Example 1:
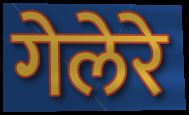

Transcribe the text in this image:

गेलेरे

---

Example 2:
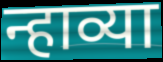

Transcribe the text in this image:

न्हाव्या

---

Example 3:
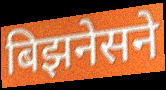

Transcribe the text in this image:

बिझनेसने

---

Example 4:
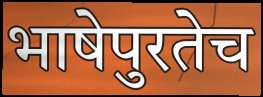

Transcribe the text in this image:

भाषेपुरतेच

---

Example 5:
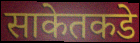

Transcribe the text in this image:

साकेतकडे